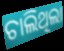
ଚାଲିଥିଲା